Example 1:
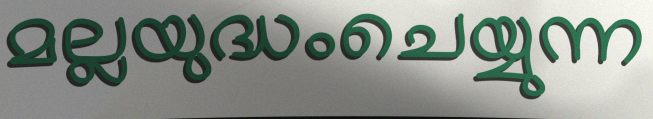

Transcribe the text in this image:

മല്ലയുദ്ധംചെയ്യുന്ന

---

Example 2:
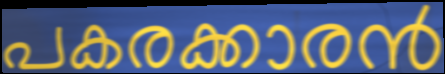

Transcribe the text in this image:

പകരക്കാരൻ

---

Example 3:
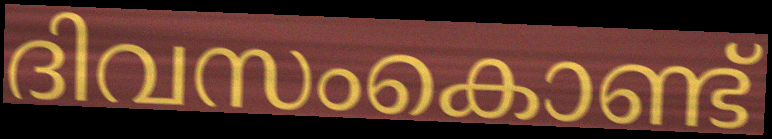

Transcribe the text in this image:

ദിവസംകൊണ്ട്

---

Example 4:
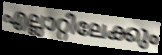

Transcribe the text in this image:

എല്ലാറ്റിലേക്കും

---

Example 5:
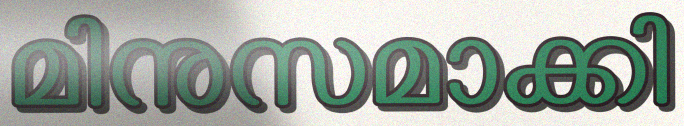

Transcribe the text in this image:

മിനുസമാക്കി